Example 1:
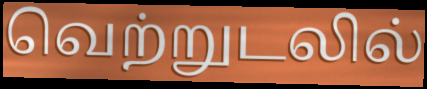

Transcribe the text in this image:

வெற்றுடலில்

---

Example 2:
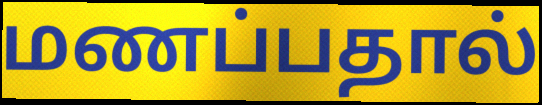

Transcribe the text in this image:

மணப்பதால்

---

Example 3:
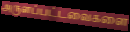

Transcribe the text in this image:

அருளப்பட்டவைகளை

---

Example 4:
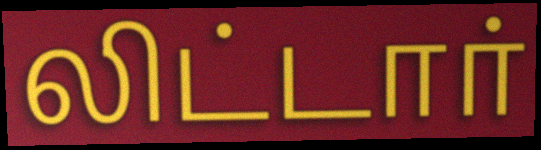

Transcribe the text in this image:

லிட்டார்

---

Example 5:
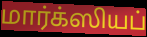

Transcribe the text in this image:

மார்க்ஸியப்